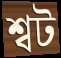
শ্বট